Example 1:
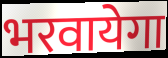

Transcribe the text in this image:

भरवायेगा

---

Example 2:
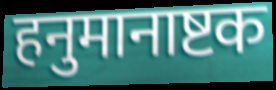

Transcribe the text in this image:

हनुमानाष्टक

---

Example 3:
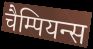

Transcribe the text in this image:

चैम्पियन्स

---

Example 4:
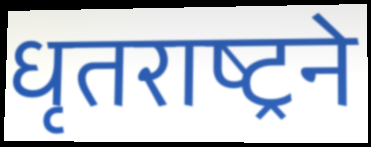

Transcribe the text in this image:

धृतराष्ट्रने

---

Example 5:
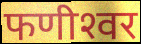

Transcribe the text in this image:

फणीश्वर